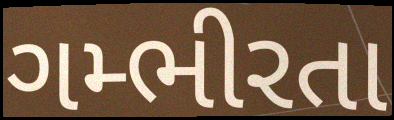
ગમ્ભીરતા